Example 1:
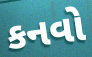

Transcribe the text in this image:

કનવો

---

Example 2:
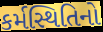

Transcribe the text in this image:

કર્મસ્થિતિનો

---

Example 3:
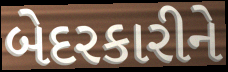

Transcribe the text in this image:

બેદરકારીને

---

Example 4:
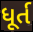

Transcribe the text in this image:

ધૂર્ત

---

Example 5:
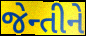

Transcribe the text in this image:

જેન્તીને